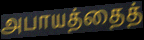
அபாயத்தைத்